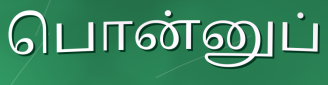
பொன்னுப்